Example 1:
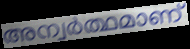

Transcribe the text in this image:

അന്വർത്ഥമാണ്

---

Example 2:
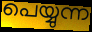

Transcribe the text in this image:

പെയ്യുന്ന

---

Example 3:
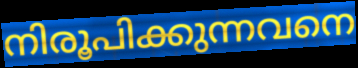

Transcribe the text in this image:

നിരൂപിക്കുന്നവനെ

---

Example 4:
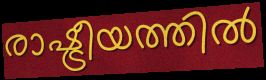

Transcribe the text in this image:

രാഷ്ട്രീയത്തിൽ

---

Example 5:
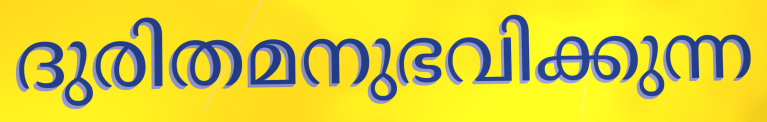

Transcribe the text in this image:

ദുരിതമനുഭവിക്കുന്ന